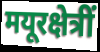
मयूरक्षेत्रीं